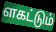
ளகட்டும்